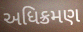
અધિક્રમણ